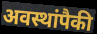
अवस्थांपैकी